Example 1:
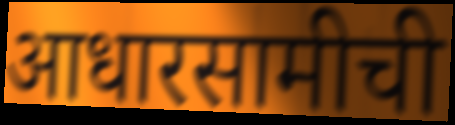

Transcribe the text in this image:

आधारसामीची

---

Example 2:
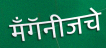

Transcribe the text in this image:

मँगॅनीजचे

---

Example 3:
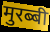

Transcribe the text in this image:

मुरब्बी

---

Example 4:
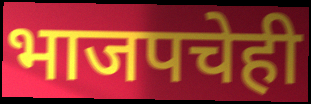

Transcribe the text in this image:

भाजपचेही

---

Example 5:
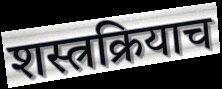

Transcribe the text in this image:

शस्त्रक्रियाच